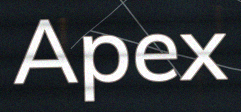
Apex